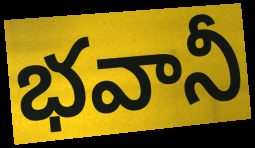
భవానీ